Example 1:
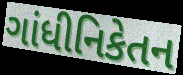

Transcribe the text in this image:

ગાંધીનિકેતન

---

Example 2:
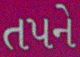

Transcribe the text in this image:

તપને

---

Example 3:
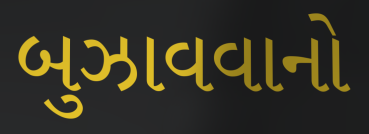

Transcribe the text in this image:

બુઝાવવાનો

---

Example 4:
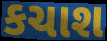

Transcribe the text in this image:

કચાશ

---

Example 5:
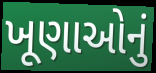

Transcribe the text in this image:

ખૂણાઓનું